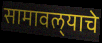
सामावल्याचे